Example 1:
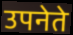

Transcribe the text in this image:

उपनेते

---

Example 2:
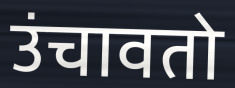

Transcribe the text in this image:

उंचावतो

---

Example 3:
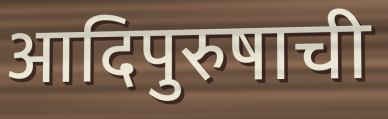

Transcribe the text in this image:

आदिपुरुषाची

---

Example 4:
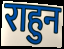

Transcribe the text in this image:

राहुन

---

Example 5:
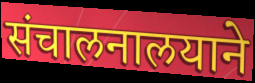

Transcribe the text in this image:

संचालनालयाने